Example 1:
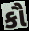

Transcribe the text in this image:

કૌ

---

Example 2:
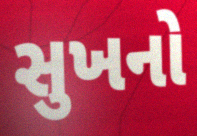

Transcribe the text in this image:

સુખનો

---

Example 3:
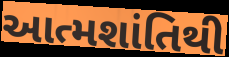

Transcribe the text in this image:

આત્મશાંતિથી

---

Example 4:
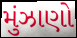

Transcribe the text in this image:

મુંઝાણો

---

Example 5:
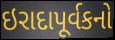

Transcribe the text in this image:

ઇરાદાપૂર્વકનો